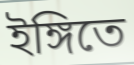
ইঙ্গিতে